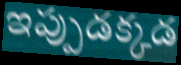
ఇప్పుడక్కడ